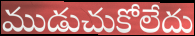
ముడుచుకోలేదు